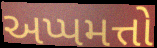
અપ્પમત્તો